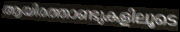
ആയിരത്താണ്ടുകളിലൂടെ